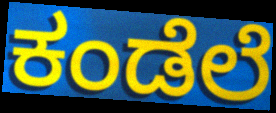
ಕಂಡೆಲೆ